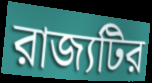
রাজ্যটির